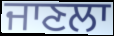
ਜਾਣਲਾ